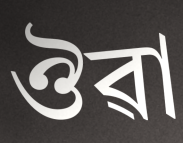
ঔৱা